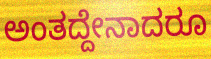
ಅಂತದ್ದೇನಾದರೂ